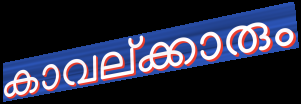
കാവല്ക്കാരും